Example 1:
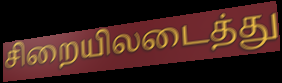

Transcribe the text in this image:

சிறையிலடைத்து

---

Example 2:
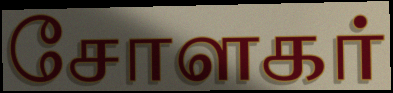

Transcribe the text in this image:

சோளகர்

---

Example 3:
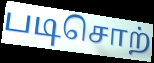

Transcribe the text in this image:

படிசொற்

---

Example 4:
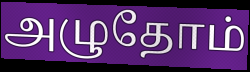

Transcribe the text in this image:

அழுதோம்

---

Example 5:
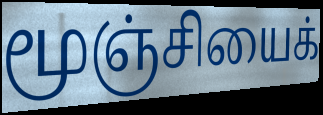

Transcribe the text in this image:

மூஞ்சியைக்